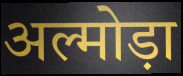
अल्मोड़ा